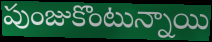
పుంజుకొంటున్నాయి